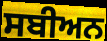
ਸਬੀਅਨ